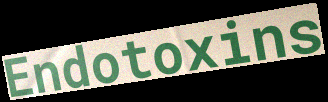
Endotoxins